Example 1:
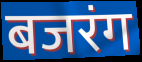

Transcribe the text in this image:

बजरंग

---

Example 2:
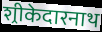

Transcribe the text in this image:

श्रीकेदारनाथ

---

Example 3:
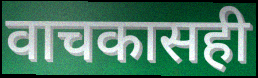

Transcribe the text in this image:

वाचकासही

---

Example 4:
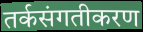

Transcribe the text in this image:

तर्कसंगतीकरण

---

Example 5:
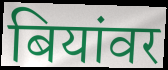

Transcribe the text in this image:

बियांवर